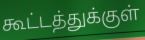
கூட்டத்துக்குள்